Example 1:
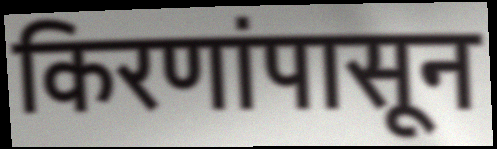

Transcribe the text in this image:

किरणांपासून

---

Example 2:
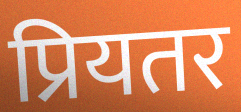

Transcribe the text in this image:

प्रियतर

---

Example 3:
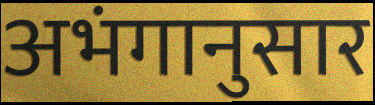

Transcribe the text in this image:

अभंगानुसार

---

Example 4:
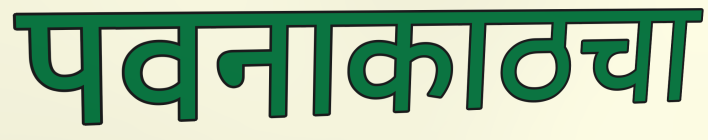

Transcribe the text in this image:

पवनाकाठचा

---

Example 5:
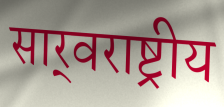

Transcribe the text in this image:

सार्वराष्ट्रीय